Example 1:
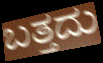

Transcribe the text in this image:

ಬತ್ತದು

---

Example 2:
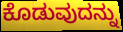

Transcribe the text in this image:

ಕೊಡುವುದನ್ನು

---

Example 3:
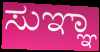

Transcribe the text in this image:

ಸುಞ್ಞಾ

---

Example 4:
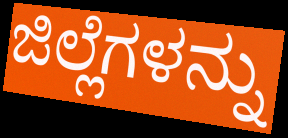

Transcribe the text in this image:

ಜಿಲ್ಲೆಗಳನ್ನು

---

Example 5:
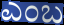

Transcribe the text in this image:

ಎಂಬ